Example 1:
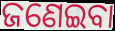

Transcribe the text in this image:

ଜଣେଇବା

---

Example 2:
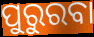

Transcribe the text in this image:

ପୁରୁରବା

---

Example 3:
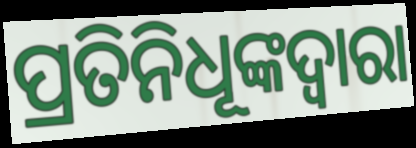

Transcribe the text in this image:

ପ୍ରତିନିଧୂଙ୍କଦ୍ଵାରା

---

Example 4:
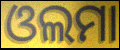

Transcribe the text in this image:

ଓଲମା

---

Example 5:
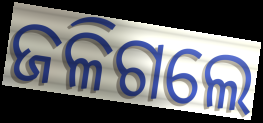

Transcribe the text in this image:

ଜଳିଗଲେ